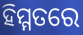
ହିମ୍ମତରେ